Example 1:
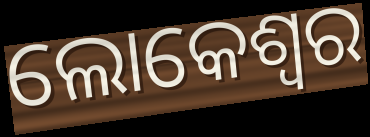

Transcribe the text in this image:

ଲୋକେଶ୍ୱର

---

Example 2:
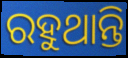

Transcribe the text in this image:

ରହୁଥାନ୍ତି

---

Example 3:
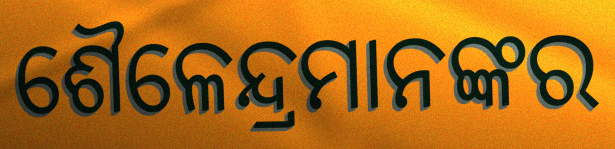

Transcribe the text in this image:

ଶୈଳେନ୍ଦ୍ରମାନଙ୍କର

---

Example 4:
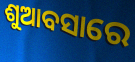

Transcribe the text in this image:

ଶୁଆବସାରେ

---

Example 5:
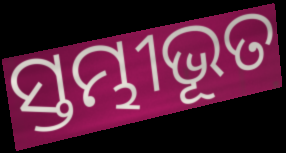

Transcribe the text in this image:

ସ୍ତମ୍ଭୀଭୂତ